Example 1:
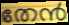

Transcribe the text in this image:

തേൻ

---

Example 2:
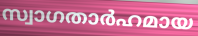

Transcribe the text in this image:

സ്വാഗതാർഹമായ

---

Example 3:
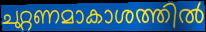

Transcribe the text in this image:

ചുറ്റണമാകാശത്തിൽ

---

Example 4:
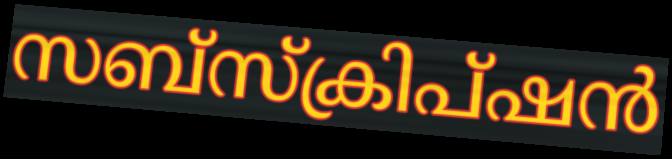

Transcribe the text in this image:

സബ്സ്ക്രിപ്ഷൻ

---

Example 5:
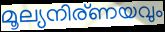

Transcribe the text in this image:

മൂല്യനിര്ണയവും